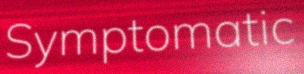
Symptomatic